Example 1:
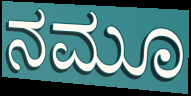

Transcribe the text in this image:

ನಮೂ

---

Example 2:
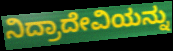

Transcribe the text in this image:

ನಿದ್ರಾದೇವಿಯನ್ನು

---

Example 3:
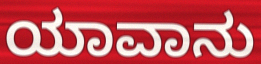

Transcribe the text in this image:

ಯಾವಾನು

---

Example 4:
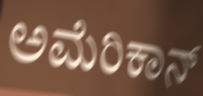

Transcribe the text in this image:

ಅಮೆರಿಕಾನ್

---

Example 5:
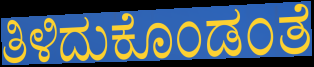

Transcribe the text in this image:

ತಿಳಿದುಕೊಂಡಂತೆ